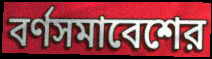
বর্ণসমাবেশের